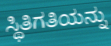
ಸ್ಥಿತಿಗತಿಯನ್ನು